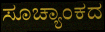
ಸೂಚ್ಯಾಂಕದ